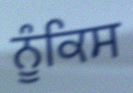
ਨੂੰਕਿਸ